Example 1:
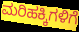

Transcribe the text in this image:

ಮರಿಹಕ್ಕಿಗಳಿಗೆ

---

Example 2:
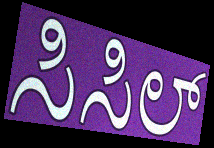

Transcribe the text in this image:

ಸಿಸಿಲ್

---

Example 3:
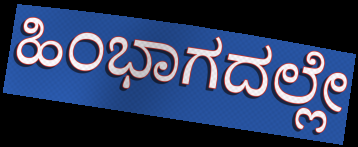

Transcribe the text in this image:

ಹಿಂಭಾಗದಲ್ಲೇ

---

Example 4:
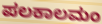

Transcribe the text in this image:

ಪಲಕಾಲಮಂ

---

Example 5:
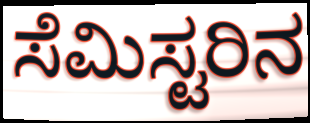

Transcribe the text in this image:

ಸೆಮಿಸ್ಟರಿನ